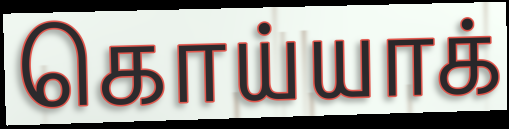
கொய்யாக்